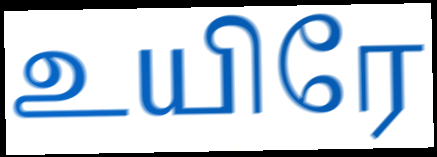
உயிரே